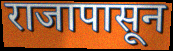
राजापासून